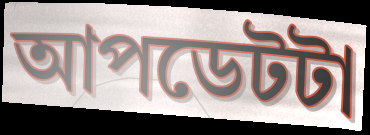
আপডেটটা